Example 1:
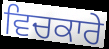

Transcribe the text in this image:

ਵਿਚਕਾਰੇ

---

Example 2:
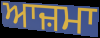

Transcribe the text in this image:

ਆਜ਼ਮਾ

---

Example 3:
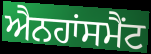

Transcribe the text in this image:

ਐਨਹਾਂਸਮੈਂਟ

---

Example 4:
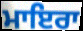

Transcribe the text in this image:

ਮਾਇਰਾ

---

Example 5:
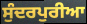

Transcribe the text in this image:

ਸੁੰਦਰਪੁਰੀਆ